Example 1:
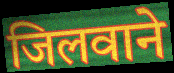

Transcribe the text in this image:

जिलवाने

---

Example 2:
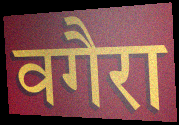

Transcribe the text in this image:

वगैरा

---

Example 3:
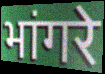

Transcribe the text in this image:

भांगरे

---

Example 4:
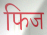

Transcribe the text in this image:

फिज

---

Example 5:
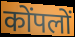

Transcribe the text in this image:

कोंपलों